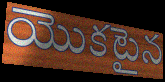
యొకటైన